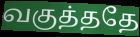
வகுத்ததே